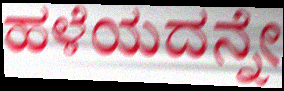
ಹಳೆಯದನ್ನೇ